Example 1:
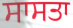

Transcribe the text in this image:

ਸਾਸਤਾ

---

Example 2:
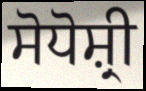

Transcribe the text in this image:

ਸੋਧੋਸ਼੍ਰੀ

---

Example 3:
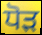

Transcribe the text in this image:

ਧੋੜ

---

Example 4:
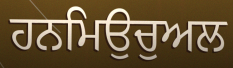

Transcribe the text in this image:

ਹਨਮਿਉਚੁਅਲ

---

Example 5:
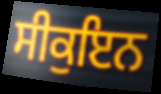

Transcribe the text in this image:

ਸੀਕੁਇਨ